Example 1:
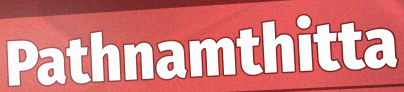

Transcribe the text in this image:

Pathnamthitta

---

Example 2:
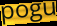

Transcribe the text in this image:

pogu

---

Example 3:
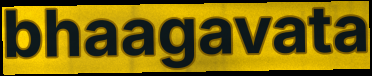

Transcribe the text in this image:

bhaagavata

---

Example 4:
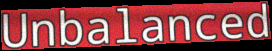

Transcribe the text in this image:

Unbalanced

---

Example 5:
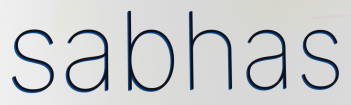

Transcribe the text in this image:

sabhas